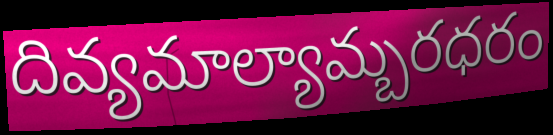
దివ్యమాల్యామ్బరధరం